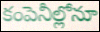
కంపెనీల్లోనూ